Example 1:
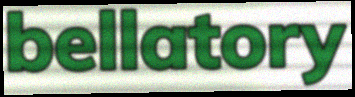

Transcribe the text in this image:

bellatory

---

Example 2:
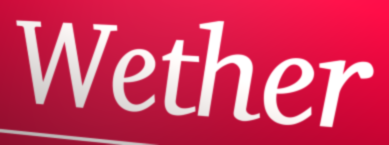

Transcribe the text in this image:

Wether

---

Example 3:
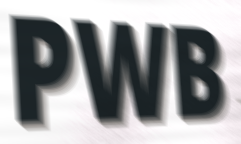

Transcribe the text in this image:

PWB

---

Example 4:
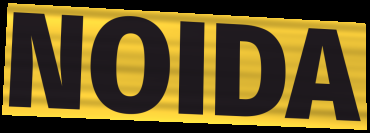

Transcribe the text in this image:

NOIDA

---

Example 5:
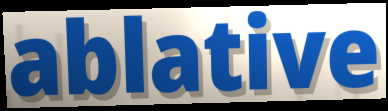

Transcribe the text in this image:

ablative